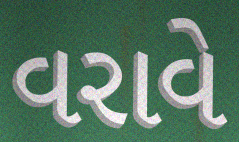
વરાવે